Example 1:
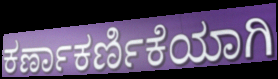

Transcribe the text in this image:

ಕರ್ಣಾಕರ್ಣಿಕೆಯಾಗಿ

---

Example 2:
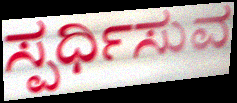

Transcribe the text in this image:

ಸ್ಪರ್ಧಿಸುವ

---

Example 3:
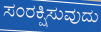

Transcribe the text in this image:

ಸಂರಕ್ಷಿಸುವುದು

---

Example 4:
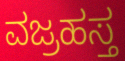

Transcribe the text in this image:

ವಜ್ರಹಸ್ತ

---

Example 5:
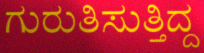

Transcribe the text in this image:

ಗುರುತಿಸುತ್ತಿದ್ದ